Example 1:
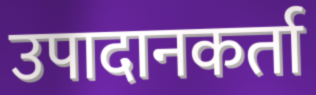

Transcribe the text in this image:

उपादानकर्ता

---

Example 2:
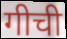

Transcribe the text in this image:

गीची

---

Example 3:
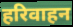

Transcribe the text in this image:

हरिवाहन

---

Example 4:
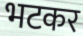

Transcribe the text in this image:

भटकर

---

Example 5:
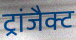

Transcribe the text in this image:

ट्रांजैक्ट